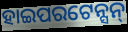
ହାଇପରଟେନ୍ସନ୍